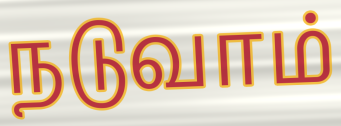
நடுவாம்